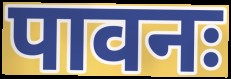
पावनः